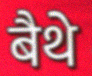
बैथे